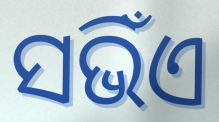
ସଭିଁଏ